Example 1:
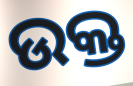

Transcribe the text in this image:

ଉକ୍ତ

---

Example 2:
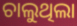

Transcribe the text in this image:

ଚାଲୁଥିଲା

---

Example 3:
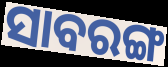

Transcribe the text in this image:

ସାବରଙ୍ଗ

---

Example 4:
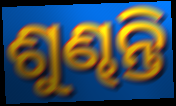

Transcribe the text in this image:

ଶୁଣ୍ଢନ୍ତି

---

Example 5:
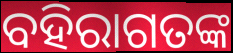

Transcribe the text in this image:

ବହିରାଗତଙ୍କ